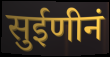
सुईणीनं